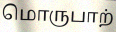
மொருபாற்